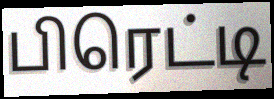
பிரெட்டி